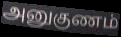
அனுகுணம்